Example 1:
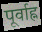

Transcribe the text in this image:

पूर्वाह्न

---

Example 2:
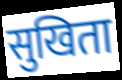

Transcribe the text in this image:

सुखिता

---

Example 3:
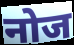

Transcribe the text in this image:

नोज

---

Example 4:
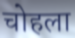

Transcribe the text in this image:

चोहला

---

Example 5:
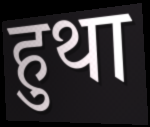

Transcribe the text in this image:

हुथा